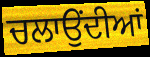
ਚਲਾਉਂਦੀਆਂ